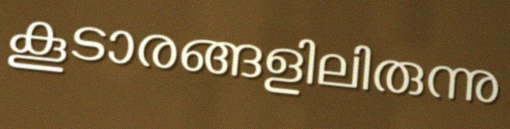
കൂടാരങ്ങളിലിരുന്നു